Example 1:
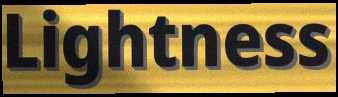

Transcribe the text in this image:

Lightness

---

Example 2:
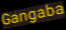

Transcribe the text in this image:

Gangaba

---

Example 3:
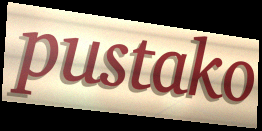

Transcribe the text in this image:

pustako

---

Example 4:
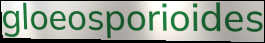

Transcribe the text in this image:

gloeosporioides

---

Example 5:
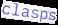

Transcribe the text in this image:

clasps